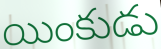
యింకుడు